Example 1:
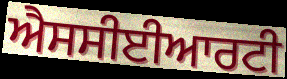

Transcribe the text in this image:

ਐਸਸੀਈਆਰਟੀ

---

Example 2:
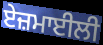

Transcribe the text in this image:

ਏਜ਼ਮਾਈਲੀ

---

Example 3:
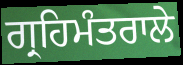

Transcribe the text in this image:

ਗ੍ਰਹਿਮੰਤਰਾਲੇ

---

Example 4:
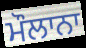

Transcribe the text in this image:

ਮੌਲਾਨਾ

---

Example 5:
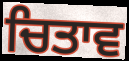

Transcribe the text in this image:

ਚਿਤਾਵ